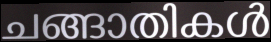
ചങ്ങാതികൾ